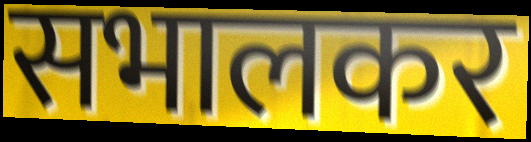
सभालकर